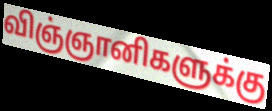
விஞ்ஞானிகளுக்கு